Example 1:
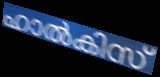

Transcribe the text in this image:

ഹാൽകിസ്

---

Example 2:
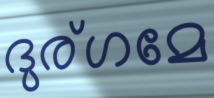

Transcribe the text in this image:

ദുര്ഗമേ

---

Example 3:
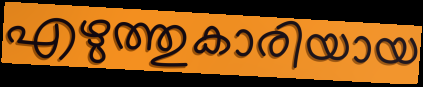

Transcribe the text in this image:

എഴുത്തുകാരിയായ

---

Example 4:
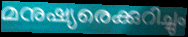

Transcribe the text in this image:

മനുഷ്യരെക്കുറിച്ചും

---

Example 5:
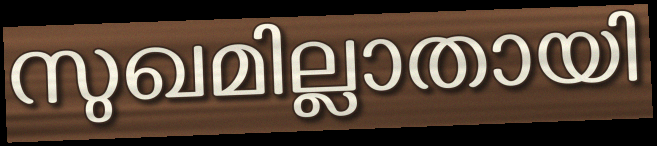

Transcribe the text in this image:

സുഖമില്ലാതായി